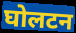
घोलटन